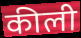
कीली